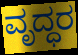
ವೃದ್ಧರ